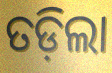
ତଡ଼ିଲା